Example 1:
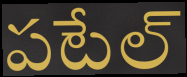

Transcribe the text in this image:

పటేల్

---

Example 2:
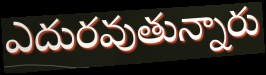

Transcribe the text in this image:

ఎదురవుతున్నారు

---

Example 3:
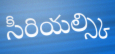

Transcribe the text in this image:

సీరియల్స్కి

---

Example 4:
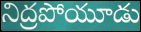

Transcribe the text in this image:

నిద్రపోయూడు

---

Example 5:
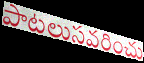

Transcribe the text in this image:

పాటలుసవరించు